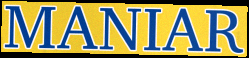
MANIAR